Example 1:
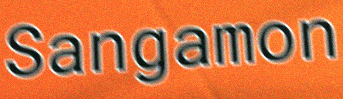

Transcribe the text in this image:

Sangamon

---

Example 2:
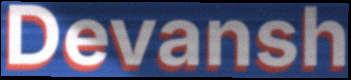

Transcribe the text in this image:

Devansh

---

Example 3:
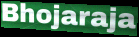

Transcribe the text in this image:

Bhojaraja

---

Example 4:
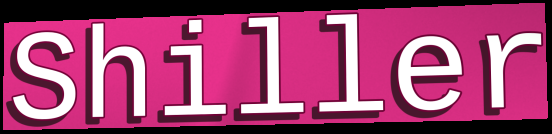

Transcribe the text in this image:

Shiller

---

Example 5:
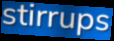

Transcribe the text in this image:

stirrups